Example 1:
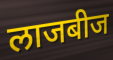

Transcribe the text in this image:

लाजबीज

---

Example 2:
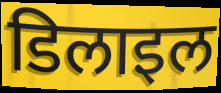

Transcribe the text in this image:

डिलाइल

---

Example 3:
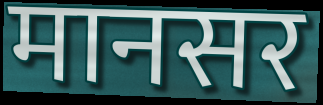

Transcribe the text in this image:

मानसर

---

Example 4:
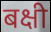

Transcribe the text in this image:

बक्षी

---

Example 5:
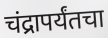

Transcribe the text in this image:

चंद्रापर्यंतचा